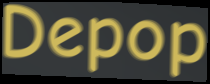
Depop